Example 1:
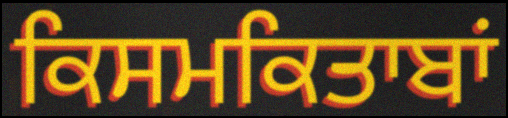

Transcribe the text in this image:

ਕਿਸਮਕਿਤਾਬਾਂ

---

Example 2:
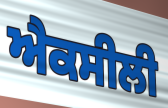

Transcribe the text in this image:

ਐਕਸੀਲੀ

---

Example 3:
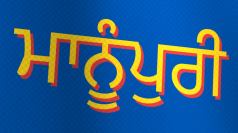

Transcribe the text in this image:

ਮਾਨੂੰਪੁਰੀ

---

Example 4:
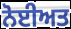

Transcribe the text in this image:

ਨੋਈਅਤ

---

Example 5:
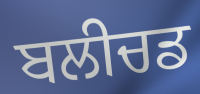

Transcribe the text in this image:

ਬਲੀਚਡ